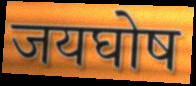
जयघोष